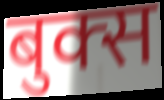
बुक्‍स